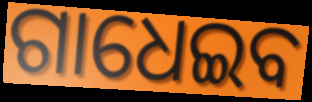
ଗାଧେଇବ